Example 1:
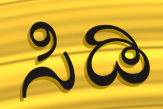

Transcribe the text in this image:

ಸಿಡಿ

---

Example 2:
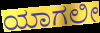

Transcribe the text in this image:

ಯಾಗಲೀ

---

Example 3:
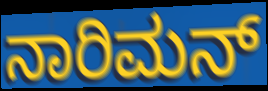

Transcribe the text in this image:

ನಾರಿಮನ್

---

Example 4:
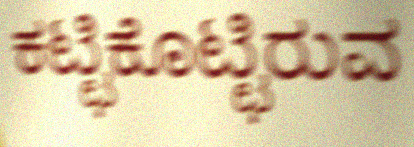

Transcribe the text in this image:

ಕಟ್ಟಿಕೊಟ್ಟಿರುವ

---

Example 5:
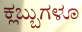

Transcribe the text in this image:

ಕ್ಲಬ್ಬುಗಳೂ